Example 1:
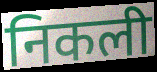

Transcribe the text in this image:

निकली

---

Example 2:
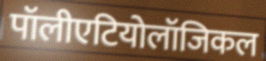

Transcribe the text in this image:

पॉलीएटियोलॉजिकल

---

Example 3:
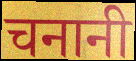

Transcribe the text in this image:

चनानी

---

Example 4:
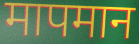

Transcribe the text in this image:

मापमान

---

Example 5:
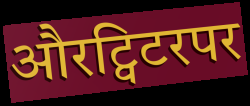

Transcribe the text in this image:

औरट्विटरपर